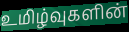
உமிழ்வுகளின்